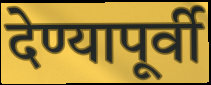
देण्यापूर्वी